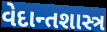
વેદાન્તશાસ્ત્ર